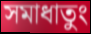
সমাধাতুং